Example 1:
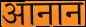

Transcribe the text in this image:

आनान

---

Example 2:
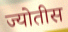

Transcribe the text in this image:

ज्योतीस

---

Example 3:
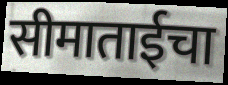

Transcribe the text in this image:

सीमाताईचा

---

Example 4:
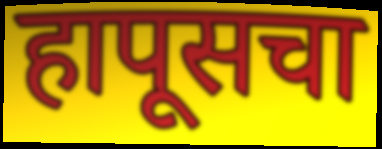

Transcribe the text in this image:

हापूसचा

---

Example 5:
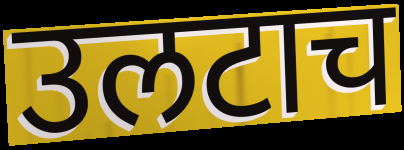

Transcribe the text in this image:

उलटाच